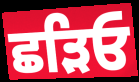
ਛੜਿਓ